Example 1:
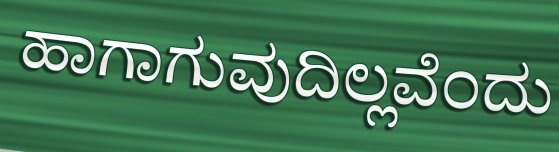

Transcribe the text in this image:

ಹಾಗಾಗುವುದಿಲ್ಲವೆಂದು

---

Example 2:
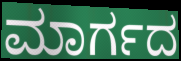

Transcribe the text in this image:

ಮಾರ್ಗದ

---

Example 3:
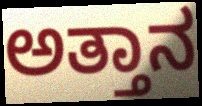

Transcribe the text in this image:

ಅತ್ತಾನ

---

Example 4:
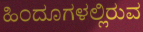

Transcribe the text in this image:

ಹಿಂದೂಗಳಲ್ಲಿರುವ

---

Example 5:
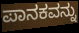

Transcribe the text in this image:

ಪಾನಕವನ್ನು